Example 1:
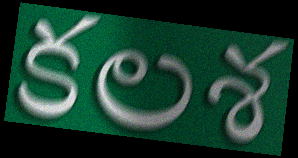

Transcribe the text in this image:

కలశ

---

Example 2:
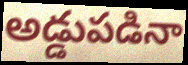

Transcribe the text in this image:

అడ్డుపడినా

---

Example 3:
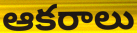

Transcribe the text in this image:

ఆకరాలు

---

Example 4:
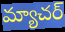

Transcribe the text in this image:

మ్యాచర్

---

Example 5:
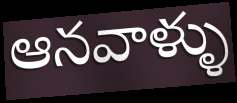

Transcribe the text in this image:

ఆనవాళ్ళు